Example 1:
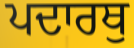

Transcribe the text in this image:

ਪਦਾਰਥੁ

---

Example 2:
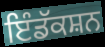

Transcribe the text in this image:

ਇੰਡੱਕਸ਼ਨ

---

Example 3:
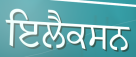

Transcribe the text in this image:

ਇਲੈਕਸਨ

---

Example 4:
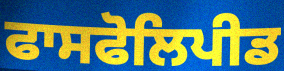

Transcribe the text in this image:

ਫਾਸਫੋਲਿਪੀਡ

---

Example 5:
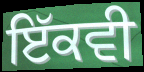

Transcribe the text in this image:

ਇੱਕਵੀ